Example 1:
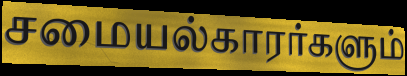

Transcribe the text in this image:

சமையல்காரர்களும்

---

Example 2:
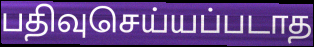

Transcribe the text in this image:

பதிவுசெய்யப்படாத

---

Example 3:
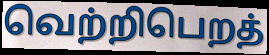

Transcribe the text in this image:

வெற்றிபெறத்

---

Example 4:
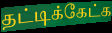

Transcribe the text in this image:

தட்டிக்கேட்க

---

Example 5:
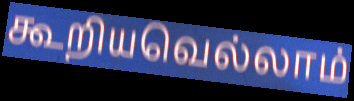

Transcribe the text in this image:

கூறியவெல்லாம்